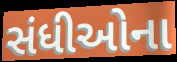
સંધીઓના